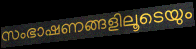
സംഭാഷണങ്ങളിലൂടെയും